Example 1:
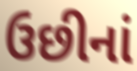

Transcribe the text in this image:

ઉછીનાં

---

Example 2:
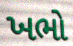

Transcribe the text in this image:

ખભો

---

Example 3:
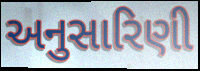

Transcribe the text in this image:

અનુસારિણી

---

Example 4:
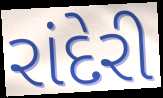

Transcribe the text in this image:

રાંદેરી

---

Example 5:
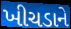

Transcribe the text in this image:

ખીચડાને